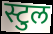
स्टुल